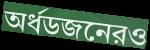
অর্ধডজনেরও